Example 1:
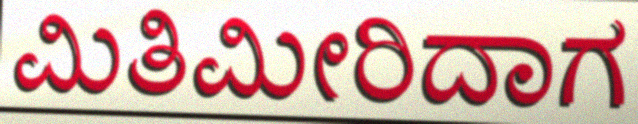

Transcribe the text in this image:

ಮಿತಿಮೀರಿದಾಗ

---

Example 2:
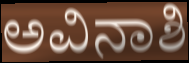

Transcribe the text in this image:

ಅವಿನಾಶಿ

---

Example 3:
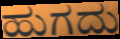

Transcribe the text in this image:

ಹುಗದು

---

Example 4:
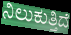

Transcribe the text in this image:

ನಿಲುಕುತ್ತಿದೆ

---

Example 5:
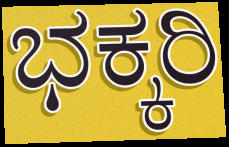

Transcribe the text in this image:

ಭಕ್ಕರಿ